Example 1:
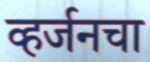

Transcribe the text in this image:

व्हर्जनचा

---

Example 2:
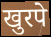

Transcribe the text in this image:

खुरपे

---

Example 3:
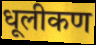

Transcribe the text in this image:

धूलीकण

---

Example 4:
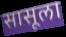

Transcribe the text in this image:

सासूला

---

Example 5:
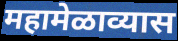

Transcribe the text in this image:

महामेळाव्यास